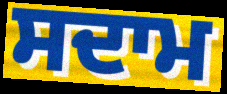
ਸਦਾਮ